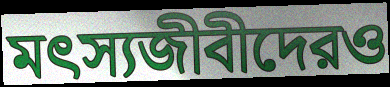
মৎস্যজীবীদেরও